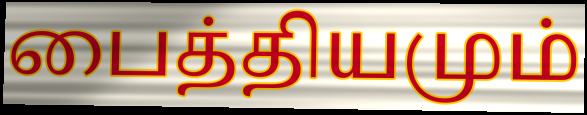
பைத்தியமும்